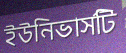
ইউনিভার্সটি